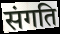
संगति